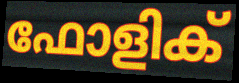
ഫോളിക്